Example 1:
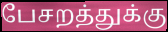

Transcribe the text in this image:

பேசறத்துக்கு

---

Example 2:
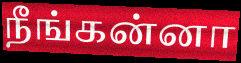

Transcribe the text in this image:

நீங்கன்னா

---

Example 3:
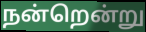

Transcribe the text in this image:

நன்றென்று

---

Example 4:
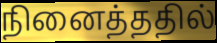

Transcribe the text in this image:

நினைத்ததில்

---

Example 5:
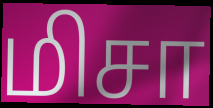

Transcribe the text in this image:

மிசா